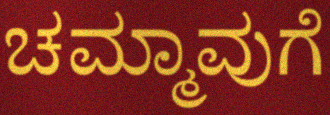
ಚಮ್ಮಾವುಗೆ